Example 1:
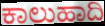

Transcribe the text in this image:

ಕಾಲುಹಾದಿ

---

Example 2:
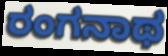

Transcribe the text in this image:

ರಂಗನಾಥ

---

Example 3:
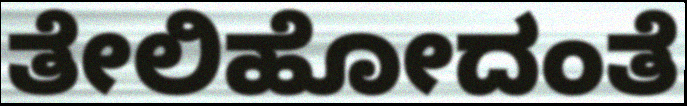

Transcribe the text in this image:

ತೇಲಿಹೋದಂತೆ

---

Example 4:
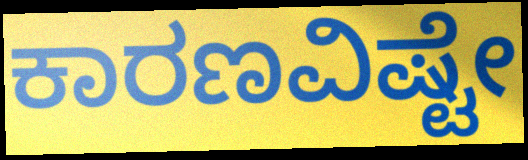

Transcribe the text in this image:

ಕಾರಣವಿಷ್ಟೇ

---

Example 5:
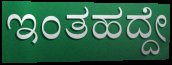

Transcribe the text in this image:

ಇಂತಹದ್ದೇ